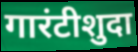
गारंटीशुदा